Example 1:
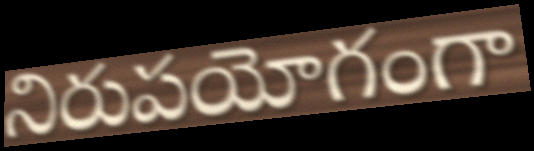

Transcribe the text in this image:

నిరుపయోగంగా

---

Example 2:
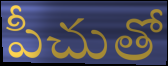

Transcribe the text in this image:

పీచుతో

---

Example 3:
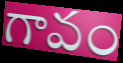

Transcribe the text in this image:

గావం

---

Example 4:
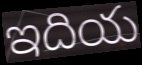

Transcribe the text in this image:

ఇదియ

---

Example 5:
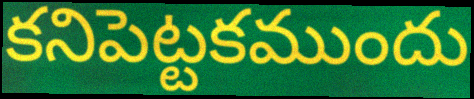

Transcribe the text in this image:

కనిపెట్టకముందు